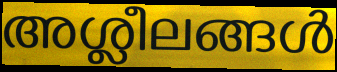
അശ്ലീലങ്ങൾ